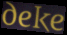
deke